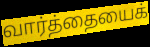
வார்த்தையைக்